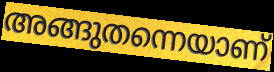
അങ്ങുതന്നെയാണ്